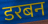
डरबन